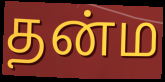
தன்ம